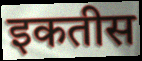
इकतीस